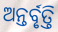
ଅନ୍ତର୍ବୃତ୍ତି